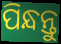
ପିନ୍ଧନ୍ତୁ